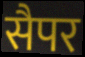
सैपर